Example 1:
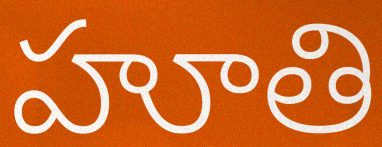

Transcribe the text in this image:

హూతి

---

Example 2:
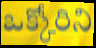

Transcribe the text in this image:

ఒక్కోరిని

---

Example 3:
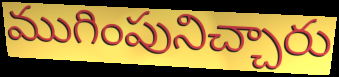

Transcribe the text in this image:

ముగింపునిచ్చారు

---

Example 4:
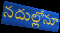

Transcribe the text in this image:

నదుల్లోనూ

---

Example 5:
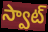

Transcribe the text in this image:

స్వాట్